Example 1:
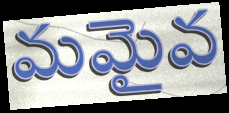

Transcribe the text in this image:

మమైవ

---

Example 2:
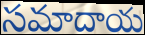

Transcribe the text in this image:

సమాదాయ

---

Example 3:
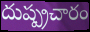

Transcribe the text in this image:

దుష్ప్రచారం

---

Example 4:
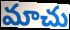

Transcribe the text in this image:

మాచు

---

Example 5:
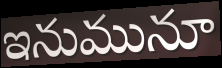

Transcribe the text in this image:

ఇనుమునూ